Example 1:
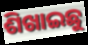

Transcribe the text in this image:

ଶିଖାଇଛୁ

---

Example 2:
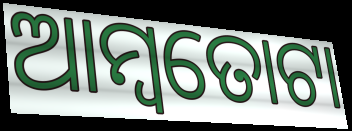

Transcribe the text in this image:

ଆମ୍ବତୋଟା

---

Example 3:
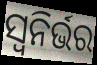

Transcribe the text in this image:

ସ୍ୱନିର୍ଭର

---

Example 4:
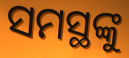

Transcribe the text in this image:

ସମସ୍ଥଙ୍କୁ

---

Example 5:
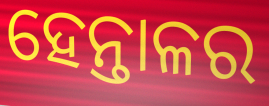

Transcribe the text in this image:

ହେନ୍ତାଳର